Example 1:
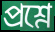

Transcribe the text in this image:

প্ৰশ্নে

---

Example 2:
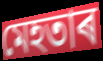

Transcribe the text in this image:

মেহতাৰ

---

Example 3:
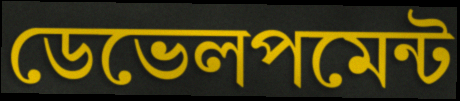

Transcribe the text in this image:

ডেভেলপমেন্ট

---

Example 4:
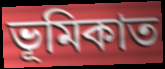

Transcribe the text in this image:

ভূমিকাত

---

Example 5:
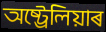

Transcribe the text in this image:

অষ্ট্ৰেলিয়াৰ